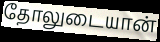
தோலுடையான்